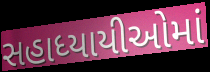
સહાધ્યાયીઓમાં